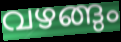
വഴങ്ങും